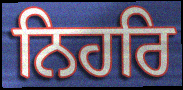
ਨਿਹਰਿ